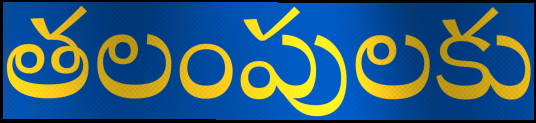
తలంపులకు